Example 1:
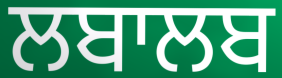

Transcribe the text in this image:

ਲਬਾਲਬ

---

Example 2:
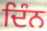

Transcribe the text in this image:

ਦਿੰਨ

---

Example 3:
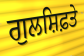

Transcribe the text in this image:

ਗੁਲਸ਼ਿਫ਼ਤੇ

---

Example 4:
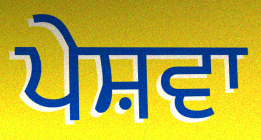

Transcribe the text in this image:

ਪੇਸ਼ਵਾ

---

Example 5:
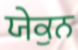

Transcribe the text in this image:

ਯੇਕੁਨ